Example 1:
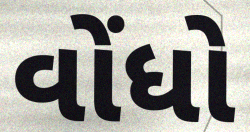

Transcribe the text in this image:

વોંધો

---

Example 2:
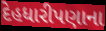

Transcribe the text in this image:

દેહધારીપણાના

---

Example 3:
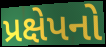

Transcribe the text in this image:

પ્રક્ષેપનો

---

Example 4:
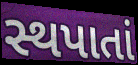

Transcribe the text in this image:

સ્થપાતાં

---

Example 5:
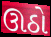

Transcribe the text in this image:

ઊઠો